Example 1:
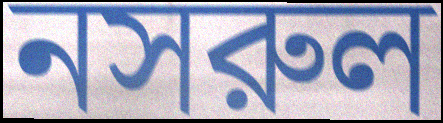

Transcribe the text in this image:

নসরুল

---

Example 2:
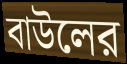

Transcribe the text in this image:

বাউলের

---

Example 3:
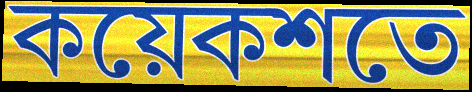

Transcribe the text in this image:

কয়েকশতে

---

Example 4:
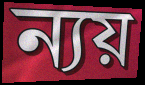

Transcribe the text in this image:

ন্যয়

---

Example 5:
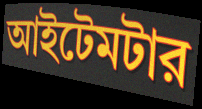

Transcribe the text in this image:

আইটেমটার